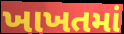
ખાખતમાં